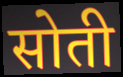
सोती